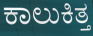
ಕಾಲುಕಿತ್ತ